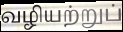
வழியற்றுப்